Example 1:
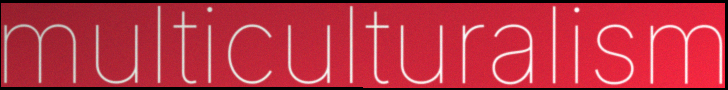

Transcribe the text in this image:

multiculturalism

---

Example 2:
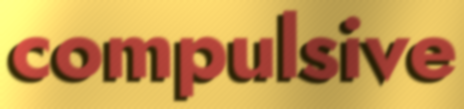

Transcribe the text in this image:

compulsive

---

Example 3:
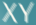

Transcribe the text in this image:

XY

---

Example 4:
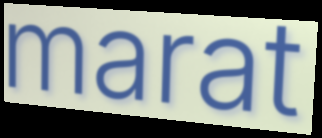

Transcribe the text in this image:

marat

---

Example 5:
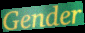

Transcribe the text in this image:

Gender